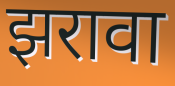
झरावा